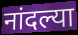
नांदल्या